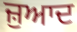
ਜ਼ੁਆਦ